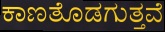
ಕಾಣತೊಡಗುತ್ತವೆ